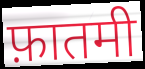
फ़ातमी